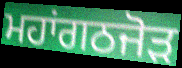
ਮਹਾਂਗਠਜੋਡ਼